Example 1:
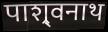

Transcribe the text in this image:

पाश्र्वनाथ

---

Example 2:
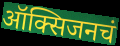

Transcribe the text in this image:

ऑक्सिजनचं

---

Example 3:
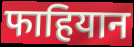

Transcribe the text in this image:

फाहियान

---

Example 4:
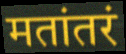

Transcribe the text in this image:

मतांतरं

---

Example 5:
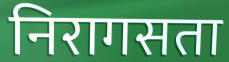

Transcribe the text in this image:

निरागसता